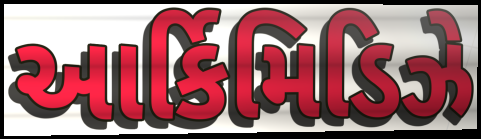
આર્કિમિડિઝે